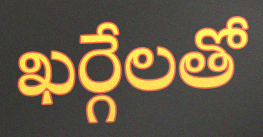
ఖర్గేలతో